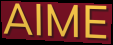
AIME